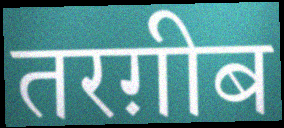
तरग़ीब